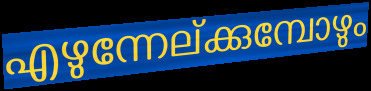
എഴുന്നേല്ക്കുമ്പോഴും